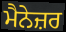
ਮੈਨੇਜ਼ਰ